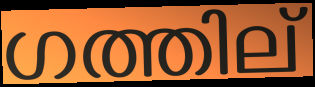
ഗത്തില്